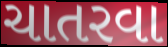
ચાતરવા